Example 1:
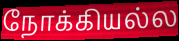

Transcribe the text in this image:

நோக்கியல்ல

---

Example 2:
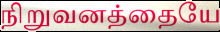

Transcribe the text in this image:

நிறுவனத்தையே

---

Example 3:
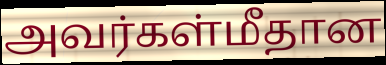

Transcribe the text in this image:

அவர்கள்மீதான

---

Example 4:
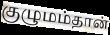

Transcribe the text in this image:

குழுமம்தான்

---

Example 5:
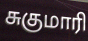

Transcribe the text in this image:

சுகுமாரி